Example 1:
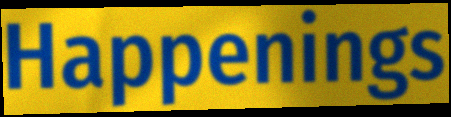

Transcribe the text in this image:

Happenings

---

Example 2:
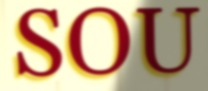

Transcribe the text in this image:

SOU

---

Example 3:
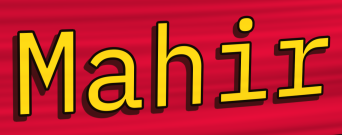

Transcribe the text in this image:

Mahir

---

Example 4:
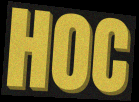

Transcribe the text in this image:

HOC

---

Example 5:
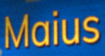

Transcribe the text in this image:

Maius